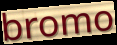
bromo